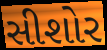
સીશોર